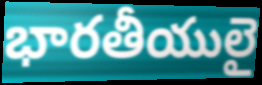
భారతీయులై